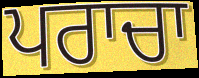
ਪਰਾਚਾ